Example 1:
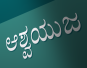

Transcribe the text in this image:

ಆಶ್ವಯುಜ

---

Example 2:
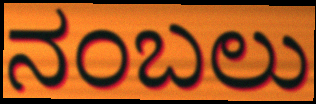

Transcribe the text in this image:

ನಂಬಲು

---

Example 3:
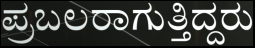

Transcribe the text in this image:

ಪ್ರಬಲರಾಗುತ್ತಿದ್ದರು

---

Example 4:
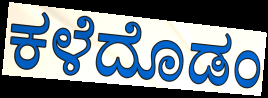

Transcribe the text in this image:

ಕಳೆದೊಡಂ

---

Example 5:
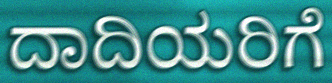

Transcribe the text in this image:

ದಾದಿಯರಿಗೆ